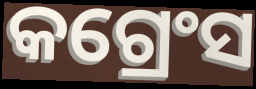
କଗ୍ରେଂସ